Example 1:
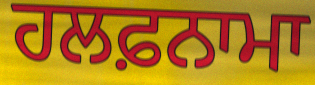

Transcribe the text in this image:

ਹਲਫ਼ਨਾਮਾ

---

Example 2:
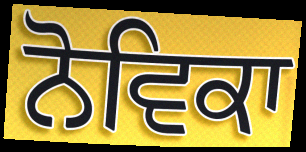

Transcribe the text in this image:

ਨੋਵਿਕਾ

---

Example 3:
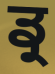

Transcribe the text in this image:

ਡ੍ਰ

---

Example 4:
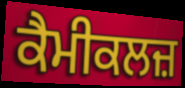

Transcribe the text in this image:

ਕੈਮੀਕਲਜ਼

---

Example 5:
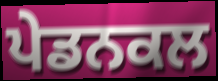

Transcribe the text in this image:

ਪੇਡਨਕਲ